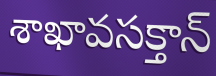
శాఖావసక్తాన్